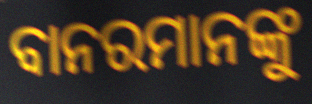
ବାନରମାନଙ୍କୁ